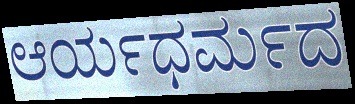
ಆರ್ಯಧರ್ಮದ